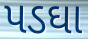
પડઘા